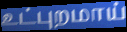
உட்புறமாய்